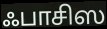
ஃபாசிஸ